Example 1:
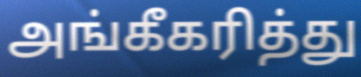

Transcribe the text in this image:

அங்கீகரித்து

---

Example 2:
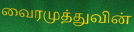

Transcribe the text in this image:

வைரமுத்துவின்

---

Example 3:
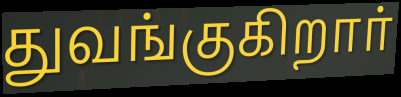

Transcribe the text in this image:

துவங்குகிறார்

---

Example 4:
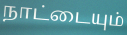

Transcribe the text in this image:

நாட்டையும்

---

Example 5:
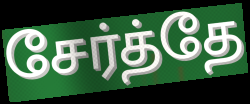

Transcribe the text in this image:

சேர்த்தே